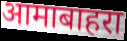
आमाबाहरा